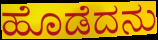
ಹೊಡೆದನು